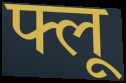
फ्लू